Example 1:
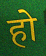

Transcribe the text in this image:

हो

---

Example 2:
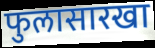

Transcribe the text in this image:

फुलासारखा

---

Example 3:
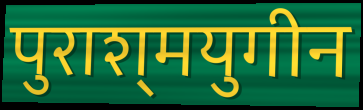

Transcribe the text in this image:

पुराश्मयुगीन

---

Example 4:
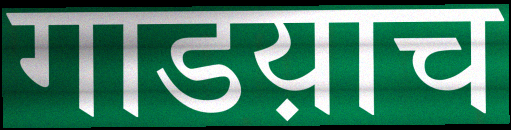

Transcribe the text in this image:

गाडय़ाच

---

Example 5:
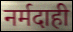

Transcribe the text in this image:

नर्मदाही